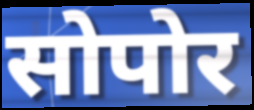
सोपोर